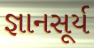
જ્ઞાનસૂર્ય